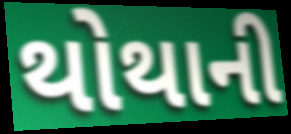
થોથાની